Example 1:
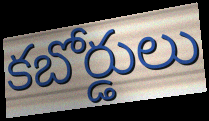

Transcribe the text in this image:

కబోర్డులు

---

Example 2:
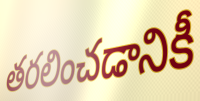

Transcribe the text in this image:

తరలించడానికీ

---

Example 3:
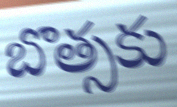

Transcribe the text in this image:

బొత్సకు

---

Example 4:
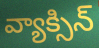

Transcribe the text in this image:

వ్యాక్సిన్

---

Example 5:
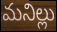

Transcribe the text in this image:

మనిల్లు